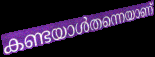
കണ്ടയാൾതന്നെയാണ്